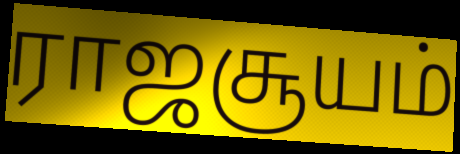
ராஜசூயம்